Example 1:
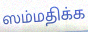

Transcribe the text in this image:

ஸம்மதிக்க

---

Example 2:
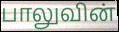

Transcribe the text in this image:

பாலுவின்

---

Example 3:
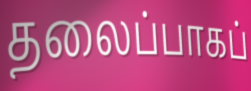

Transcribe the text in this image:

தலைப்பாகப்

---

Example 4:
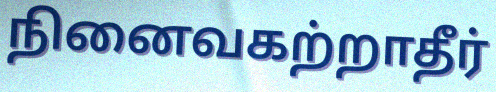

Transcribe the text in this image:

நினைவகற்றாதீர்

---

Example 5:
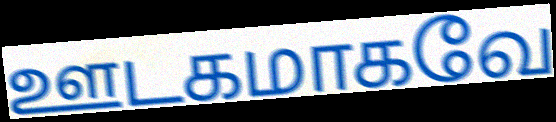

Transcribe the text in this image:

ஊடகமாகவே